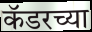
कॅडरच्या